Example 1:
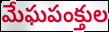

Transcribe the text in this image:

మేఘపంక్తుల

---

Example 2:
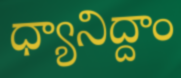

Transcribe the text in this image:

ధ్యానిద్దాం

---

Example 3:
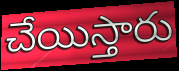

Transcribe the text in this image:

చేయిస్తారు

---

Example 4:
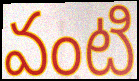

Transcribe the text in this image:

వంటి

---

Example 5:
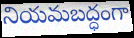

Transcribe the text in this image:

నియమబద్ధంగా